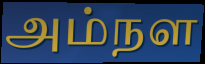
அம்நள